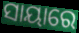
ସାୟାରେ